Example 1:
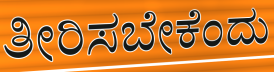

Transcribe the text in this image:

ತೀರಿಸಬೇಕೆಂದು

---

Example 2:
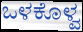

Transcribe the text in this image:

ಒಳಕೊಳ್ವ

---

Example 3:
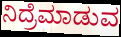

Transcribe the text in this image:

ನಿದ್ರೆಮಾಡುವ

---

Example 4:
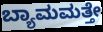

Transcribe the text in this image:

ಬ್ಯಾಮಮತ್ತೇ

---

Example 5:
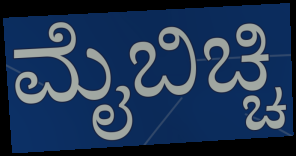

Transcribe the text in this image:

ಮೈಬಿಚ್ಚಿ